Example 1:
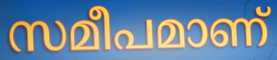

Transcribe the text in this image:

സമീപമാണ്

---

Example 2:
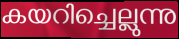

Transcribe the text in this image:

കയറിച്ചെല്ലുന്നു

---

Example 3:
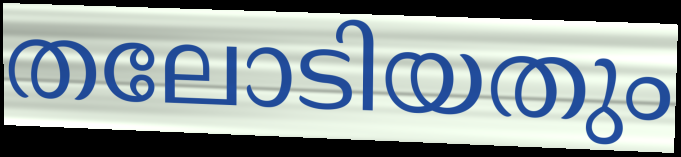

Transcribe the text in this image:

തലോടിയതും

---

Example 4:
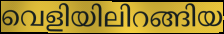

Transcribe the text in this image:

വെളിയിലിറങ്ങിയ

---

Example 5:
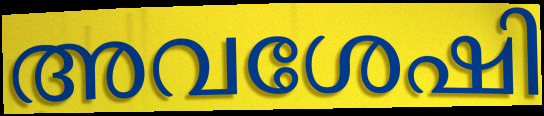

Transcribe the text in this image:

അവശേഷി